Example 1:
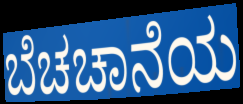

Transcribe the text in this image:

ಬೆಚಚಾನೆಯ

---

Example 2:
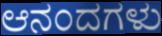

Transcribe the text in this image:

ಆನಂದಗಳು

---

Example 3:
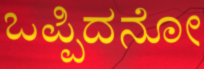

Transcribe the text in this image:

ಒಪ್ಪಿದನೋ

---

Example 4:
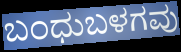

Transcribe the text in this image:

ಬಂಧುಬಳಗವು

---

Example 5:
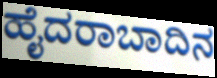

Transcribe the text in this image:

ಹೈದರಾಬಾದಿನ